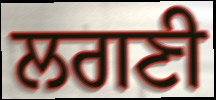
ਲਗਣੀ